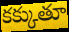
కక్కుతూ